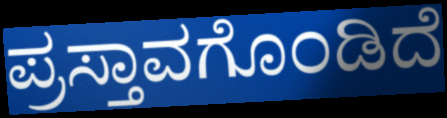
ಪ್ರಸ್ತಾವಗೊಂಡಿದೆ